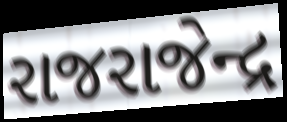
રાજરાજેન્દ્ર